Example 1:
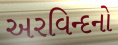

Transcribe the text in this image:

અરવિન્દનો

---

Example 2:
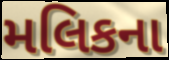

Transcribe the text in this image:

મલિકના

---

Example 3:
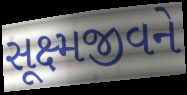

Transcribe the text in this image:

સૂક્ષ્મજીવને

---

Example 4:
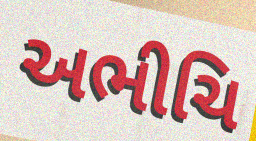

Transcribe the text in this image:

અભીચિ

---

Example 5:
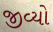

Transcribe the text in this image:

જીવ્યો